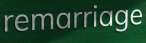
remarriage